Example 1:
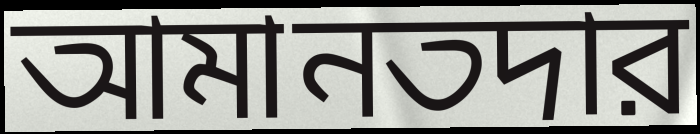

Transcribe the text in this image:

আমানতদার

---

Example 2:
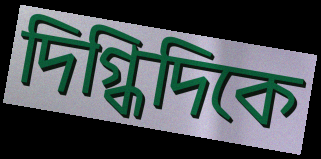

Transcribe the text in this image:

দিগ্ধিদিকে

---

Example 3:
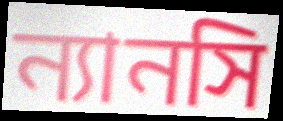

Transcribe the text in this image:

ন্যানসি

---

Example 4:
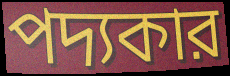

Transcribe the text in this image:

পদ্যকার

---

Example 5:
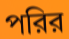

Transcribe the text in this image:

পরির